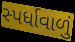
સ્પર્ધાવાળું